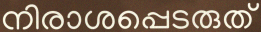
നിരാശപ്പെടരുത്